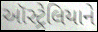
ઑસ્ટ્રેલિયાને